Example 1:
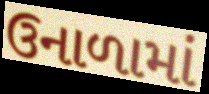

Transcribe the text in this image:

ઉનાળામાં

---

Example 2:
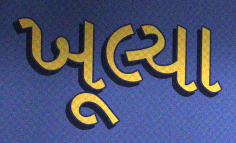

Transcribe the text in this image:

ખૂલ્યા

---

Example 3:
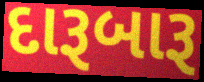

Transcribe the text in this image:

દારૂબારૂ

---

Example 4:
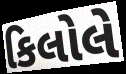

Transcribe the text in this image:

કિલોલે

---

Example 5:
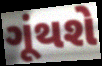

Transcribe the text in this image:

ગૂંથશે